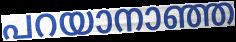
പറയാനാഞ്ഞ